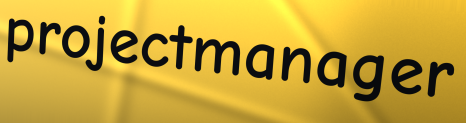
projectmanager